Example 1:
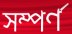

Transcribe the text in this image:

সম্পর্ণ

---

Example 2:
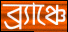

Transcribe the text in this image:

ব্র্যাঞ্চে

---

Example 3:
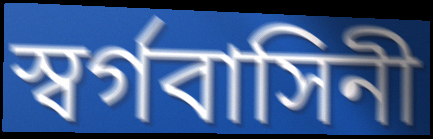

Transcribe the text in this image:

স্বর্গবাসিনী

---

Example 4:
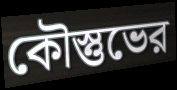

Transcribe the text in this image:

কৌস্তুভের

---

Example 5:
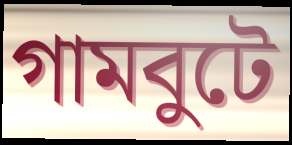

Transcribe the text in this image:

গামবুটে